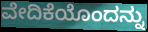
ವೇದಿಕೆಯೊಂದನ್ನು